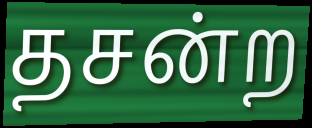
தசன்ற